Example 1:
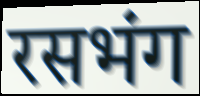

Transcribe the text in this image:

रसभंग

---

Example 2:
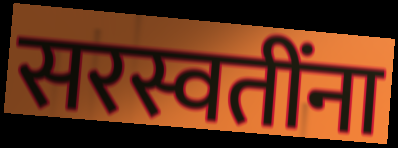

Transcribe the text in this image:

सरस्वतींना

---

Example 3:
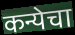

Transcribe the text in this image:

कन्येचा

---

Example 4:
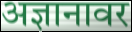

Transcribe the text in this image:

अज्ञानावर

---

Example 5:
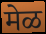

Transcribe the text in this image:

मेळ